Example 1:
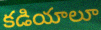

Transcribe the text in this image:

కడియాలూ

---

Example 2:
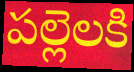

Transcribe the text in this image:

పల్లెలకి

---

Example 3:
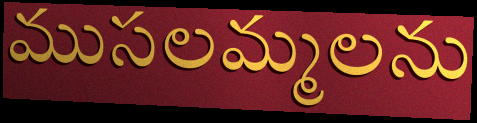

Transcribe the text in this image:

ముసలమ్మలను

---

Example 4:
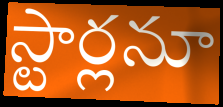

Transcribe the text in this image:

స్టార్లనూ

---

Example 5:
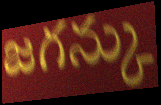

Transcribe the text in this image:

జగన్కు